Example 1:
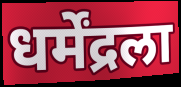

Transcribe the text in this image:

धर्मेंद्रला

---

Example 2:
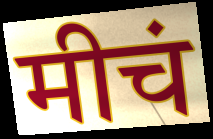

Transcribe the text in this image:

मीचं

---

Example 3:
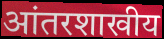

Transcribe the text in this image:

आंतरशाखीय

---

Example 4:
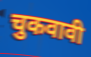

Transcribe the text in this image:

चुकवावी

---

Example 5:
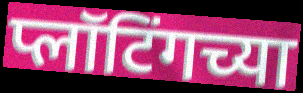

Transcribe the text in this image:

प्लॉटिंगच्या